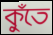
কুঁতে